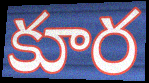
కూర